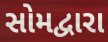
સોમદ્વારા